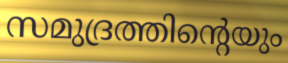
സമുദ്രത്തിന്റെയും